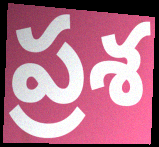
ప్రశ